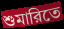
শুমারিতে